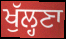
ਖੁੱਲ੍ਹਣਾ